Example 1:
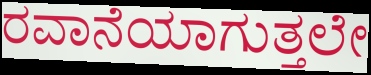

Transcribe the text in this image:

ರವಾನೆಯಾಗುತ್ತಲೇ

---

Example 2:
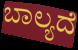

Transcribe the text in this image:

ಬಾಲ್ಯದೆ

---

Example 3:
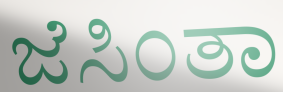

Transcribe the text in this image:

ಜೆಸಿಂತಾ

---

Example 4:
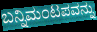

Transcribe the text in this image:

ಬನ್ನಿಮಂಟಪವನ್ನು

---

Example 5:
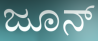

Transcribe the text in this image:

ಜೂನ್